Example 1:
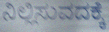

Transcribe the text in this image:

ನಿಲ್ಲಿಸುವದಕ್ಕೆ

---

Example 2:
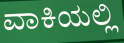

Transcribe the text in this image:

ವಾಕಿಯಲ್ಲಿ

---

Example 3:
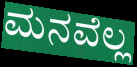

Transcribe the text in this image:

ಮನವೆಲ್ಲ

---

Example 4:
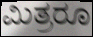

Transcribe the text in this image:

ಮಿತ್ರರೂ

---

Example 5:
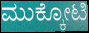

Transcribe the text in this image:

ಮುಕ್ಕೋಟಿ